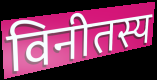
विनीतस्य